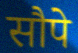
सौपे